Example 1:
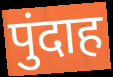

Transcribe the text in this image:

पुंदाह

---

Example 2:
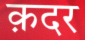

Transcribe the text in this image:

क़दर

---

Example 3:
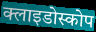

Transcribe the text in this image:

क्लाइडोस्कोप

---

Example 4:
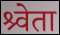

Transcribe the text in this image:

श्र्वेता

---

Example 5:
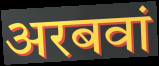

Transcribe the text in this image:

अरबवां